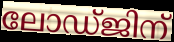
ലോഡ്ജിന്